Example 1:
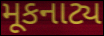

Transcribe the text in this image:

મૂકનાટ્ય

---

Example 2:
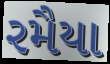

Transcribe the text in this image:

રમૈયા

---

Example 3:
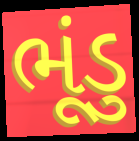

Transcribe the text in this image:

ભૂંડુ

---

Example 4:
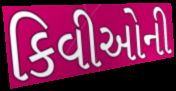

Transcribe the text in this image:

કિવીઓની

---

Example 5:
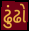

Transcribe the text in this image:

ઢુંઢો